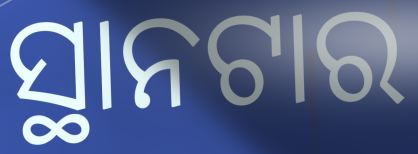
ସ୍ଥାନଟାର